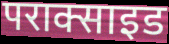
पराक्साइड